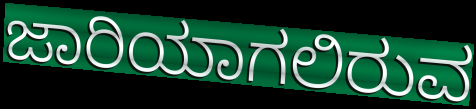
ಜಾರಿಯಾಗಲಿರುವ